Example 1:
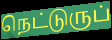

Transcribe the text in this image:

நெட்டுருப்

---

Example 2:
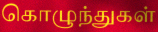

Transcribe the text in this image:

கொழுந்துகள்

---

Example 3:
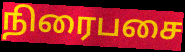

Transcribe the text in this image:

நிரைபசை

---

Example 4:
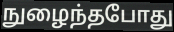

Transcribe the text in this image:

நுழைந்தபோது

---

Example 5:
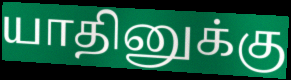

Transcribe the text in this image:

யாதினுக்கு